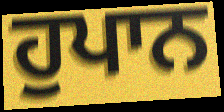
ਹੁਪਾਨ